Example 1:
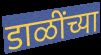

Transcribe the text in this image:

डाळींच्या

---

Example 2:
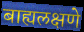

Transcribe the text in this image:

बाह्यलक्षणे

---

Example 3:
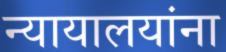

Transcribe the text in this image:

न्यायालयांना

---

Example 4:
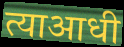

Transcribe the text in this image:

त्याआधी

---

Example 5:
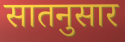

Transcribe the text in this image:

सातनुसार